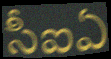
సీఐఏ